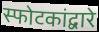
स्फोटकांद्वारे